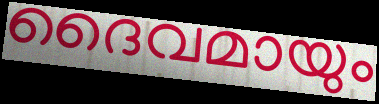
ദൈവമായും